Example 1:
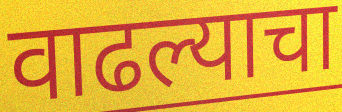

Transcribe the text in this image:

वाढल्याचा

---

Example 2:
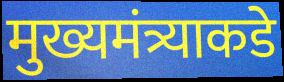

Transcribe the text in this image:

मुख्यमंत्र्याकडे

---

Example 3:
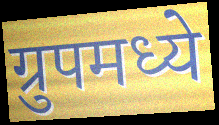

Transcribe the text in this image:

ग्रुपमध्ये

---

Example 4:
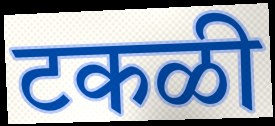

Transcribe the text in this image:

टकळी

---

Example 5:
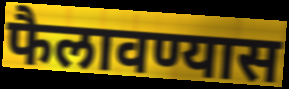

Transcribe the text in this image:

फैलावण्यास